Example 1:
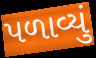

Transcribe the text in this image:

પળાવ્યું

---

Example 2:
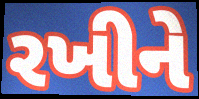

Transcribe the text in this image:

રખીને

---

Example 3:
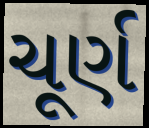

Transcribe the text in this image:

ચૂર્ણ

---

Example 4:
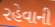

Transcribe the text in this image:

રહેવાની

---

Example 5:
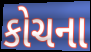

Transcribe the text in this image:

કોચના